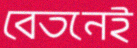
বেতনেই